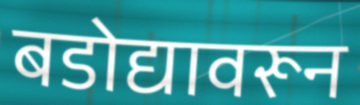
बडोद्यावरून